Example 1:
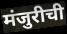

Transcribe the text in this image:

मंजुरीची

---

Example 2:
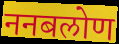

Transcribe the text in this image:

ननबलोण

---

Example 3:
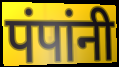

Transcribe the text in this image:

पंपांनी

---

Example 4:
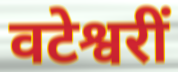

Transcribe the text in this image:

वटेश्वरीं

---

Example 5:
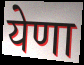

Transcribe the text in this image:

येणा